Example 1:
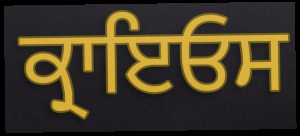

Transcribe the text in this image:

ਕ੍ਰਾਇਓਸ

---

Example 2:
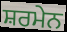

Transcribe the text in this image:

ਸ਼ਰਮੇਨ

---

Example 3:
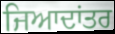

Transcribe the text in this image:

ਜਿਆਦਾਂਤਰ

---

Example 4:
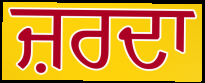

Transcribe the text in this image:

ਜ਼ਰਦਾ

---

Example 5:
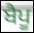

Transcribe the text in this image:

ਬੈਪੂ